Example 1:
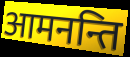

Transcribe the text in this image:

आमनन्ति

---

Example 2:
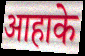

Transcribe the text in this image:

आहाके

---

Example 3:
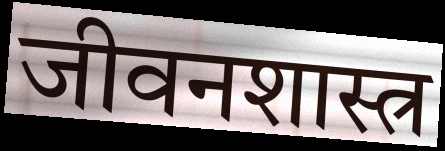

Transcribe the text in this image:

जीवनशास्त्र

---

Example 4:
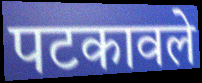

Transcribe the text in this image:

पटकावले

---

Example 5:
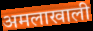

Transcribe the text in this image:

अमलाखाली